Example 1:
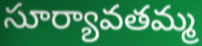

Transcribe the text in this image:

సూర్యావతమ్మ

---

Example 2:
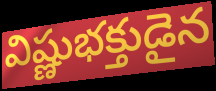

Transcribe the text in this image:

విష్ణుభక్తుడైన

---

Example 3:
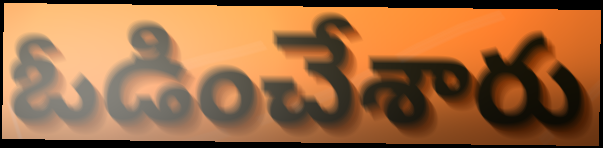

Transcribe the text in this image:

ఓడించేశారు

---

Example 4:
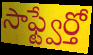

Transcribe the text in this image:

సాఫ్ట్వేర్తో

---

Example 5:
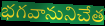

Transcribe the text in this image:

భగవానునిచేత